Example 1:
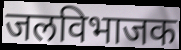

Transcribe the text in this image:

जलविभाजक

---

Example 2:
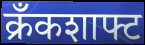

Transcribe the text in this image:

क्रँकशाफ्ट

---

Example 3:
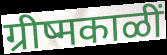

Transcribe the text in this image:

ग्रीष्मकाळीं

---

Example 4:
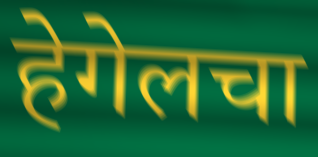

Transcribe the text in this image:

हेगेलचा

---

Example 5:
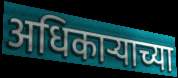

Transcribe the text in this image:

अधिकाऱ्याच्या